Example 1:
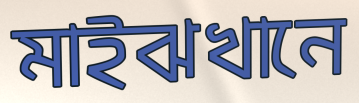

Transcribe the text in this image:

মাইঝখানে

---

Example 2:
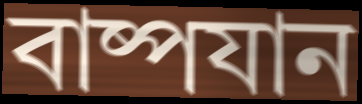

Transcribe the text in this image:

বাষ্পযান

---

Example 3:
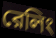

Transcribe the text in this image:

রেলিং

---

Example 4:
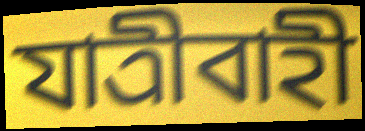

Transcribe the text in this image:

যাত্রীবাহী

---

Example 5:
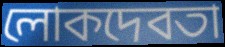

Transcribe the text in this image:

লোকদেবতা